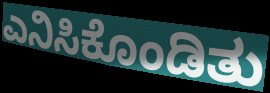
ಎನಿಸಿಕೊಂಡಿತು